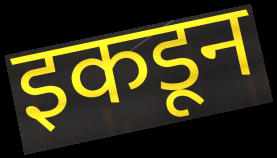
इकडून